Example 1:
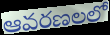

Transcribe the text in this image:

ఆవరణలలో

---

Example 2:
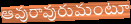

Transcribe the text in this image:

ఆవురావురుమంటూ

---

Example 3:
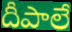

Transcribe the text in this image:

దీపాలే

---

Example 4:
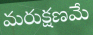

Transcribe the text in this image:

మరుక్షణమే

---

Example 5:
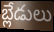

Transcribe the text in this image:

బ్లేడులు